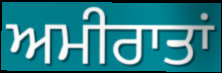
ਅਮੀਰਾਤਾਂ